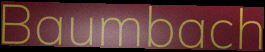
Baumbach